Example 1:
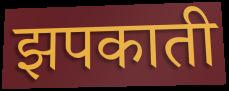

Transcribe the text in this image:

झपकाती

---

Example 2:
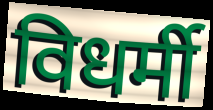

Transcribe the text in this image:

विधर्मी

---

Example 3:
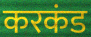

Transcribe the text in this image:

करकंड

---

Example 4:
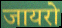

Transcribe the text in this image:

जायरो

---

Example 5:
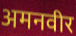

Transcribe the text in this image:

अमनवीर